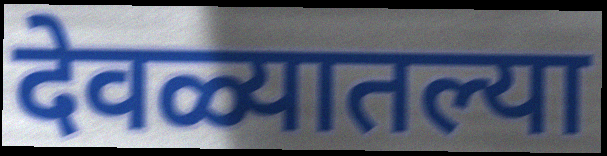
देवळ्यातल्या